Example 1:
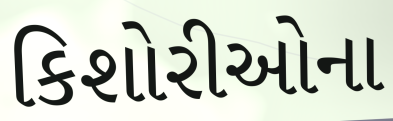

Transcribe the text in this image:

કિશોરીઓના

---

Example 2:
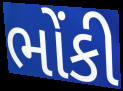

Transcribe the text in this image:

ભોંકી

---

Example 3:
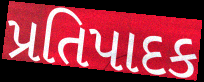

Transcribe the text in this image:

પ્રતિપાદક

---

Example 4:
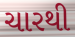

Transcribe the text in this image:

ચારથી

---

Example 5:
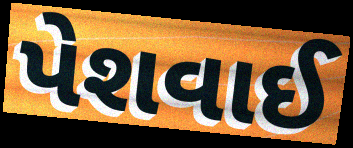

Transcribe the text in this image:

પેશવાઈ